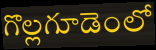
గొల్లగూడెంలో